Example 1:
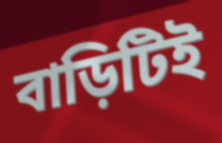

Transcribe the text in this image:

বাড়িটিই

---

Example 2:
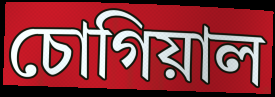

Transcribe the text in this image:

চোগিয়াল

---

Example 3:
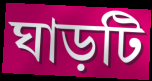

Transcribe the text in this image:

ঘাড়টি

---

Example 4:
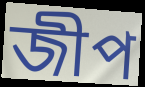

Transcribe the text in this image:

জীপ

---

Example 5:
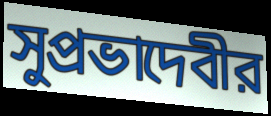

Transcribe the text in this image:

সুপ্রভাদেবীর